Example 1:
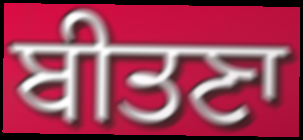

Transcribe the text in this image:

ਬੀਤਣਾ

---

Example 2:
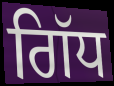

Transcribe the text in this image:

ਗਿੱਧ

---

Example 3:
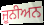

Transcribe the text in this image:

ਜੂਨੀਅਨ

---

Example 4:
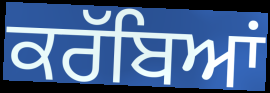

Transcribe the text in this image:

ਕਰੱਬਿਆਂ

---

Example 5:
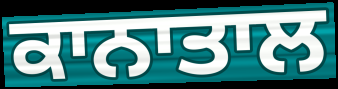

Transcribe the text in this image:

ਕਾਨਾਤਾਲ